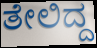
ತೇಲಿದ್ದ